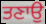
ਤਣਾਉ